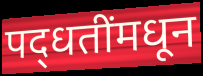
पद्धतींमधून